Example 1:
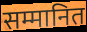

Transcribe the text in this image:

सम्मानित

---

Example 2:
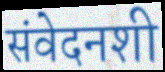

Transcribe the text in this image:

संवेदनशी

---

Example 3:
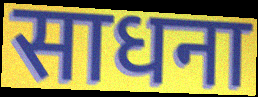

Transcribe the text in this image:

साधना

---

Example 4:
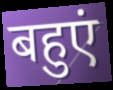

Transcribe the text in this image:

बहुएं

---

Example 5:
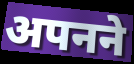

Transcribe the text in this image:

अपनने